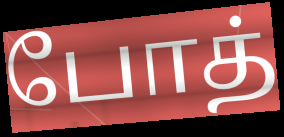
போத்